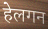
हेलगन